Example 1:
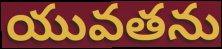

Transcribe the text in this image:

యువతను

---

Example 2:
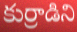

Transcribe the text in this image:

కుర్రాడిని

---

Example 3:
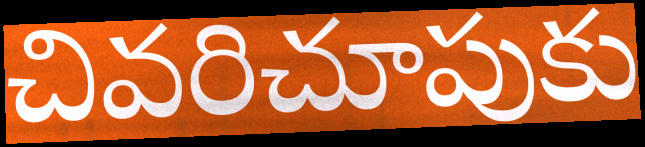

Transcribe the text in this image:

చివరిచూపుకు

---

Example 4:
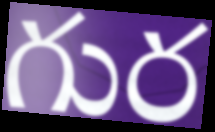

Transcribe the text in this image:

గుర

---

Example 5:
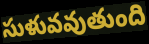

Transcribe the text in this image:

సుళువవుతుంది